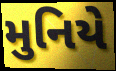
મુનિયે